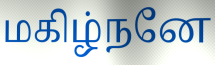
மகிழ்நனே